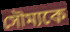
সৌম্যকে